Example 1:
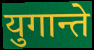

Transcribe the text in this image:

युगान्ते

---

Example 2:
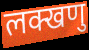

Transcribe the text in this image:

लक्खणु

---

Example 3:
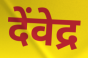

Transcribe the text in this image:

देंवेद्र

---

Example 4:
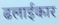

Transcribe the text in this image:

ढलाईकार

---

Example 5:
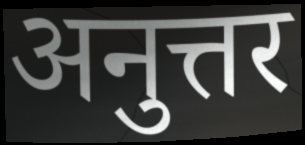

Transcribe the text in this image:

अनुत्तर